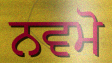
ਨਵਮੋ